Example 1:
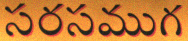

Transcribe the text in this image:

సరసముగ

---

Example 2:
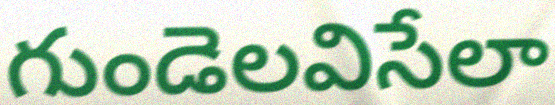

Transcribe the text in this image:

గుండెలవిసేలా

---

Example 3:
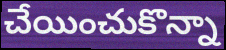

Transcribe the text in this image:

చేయించుకొన్నా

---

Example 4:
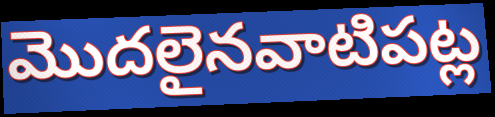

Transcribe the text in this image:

మొదలైనవాటిపట్ల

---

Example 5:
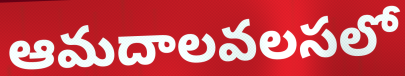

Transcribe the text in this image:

ఆమదాలవలసలో